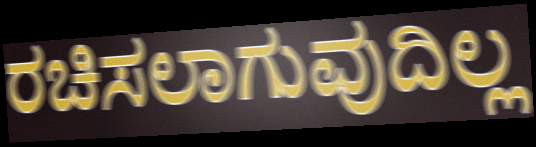
ರಚಿಸಲಾಗುವುದಿಲ್ಲ